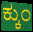
ಕ್ಕುಂ